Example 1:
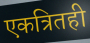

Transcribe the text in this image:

एकत्रितही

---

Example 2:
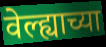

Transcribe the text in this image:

वेल्ह्याच्या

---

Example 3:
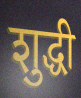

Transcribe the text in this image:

शुद्धी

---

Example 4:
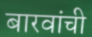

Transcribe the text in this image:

बारवांची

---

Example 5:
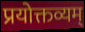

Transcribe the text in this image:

प्रयोक्तव्यम्